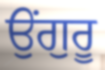
ਉਂਗੁਰੂ